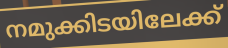
നമുക്കിടയിലേക്ക്